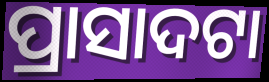
ପ୍ରାସାଦଟା